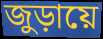
জুড়ায়ে